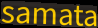
samata